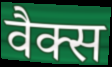
वैक्स